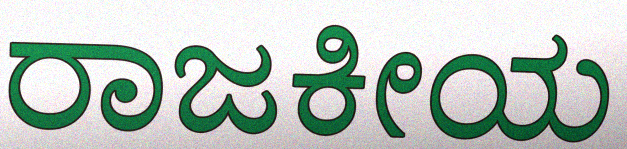
ರಾಜಕೀಯ